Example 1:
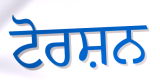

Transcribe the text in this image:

ਟੋਰਸ਼ਨ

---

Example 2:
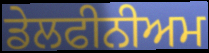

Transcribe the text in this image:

ਡੇਲਫੀਨੀਅਮ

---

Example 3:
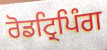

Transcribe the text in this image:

ਰੋਡਟ੍ਰਿਪਿੰਗ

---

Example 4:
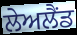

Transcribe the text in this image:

ਲੇਅਲੈਂਡ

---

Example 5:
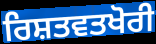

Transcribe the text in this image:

ਰਿਸ਼ਤਵਤਖੋਰੀ